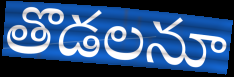
తొడలనూ